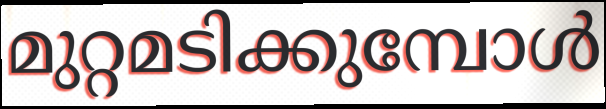
മുറ്റമടിക്കുമ്പോൾ